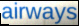
airways